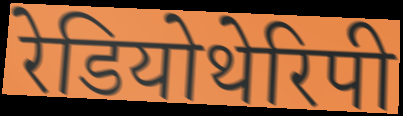
रेडियोथेरिपी